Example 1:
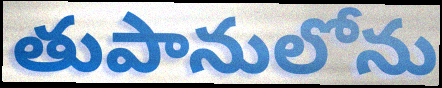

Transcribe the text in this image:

తుపానులోను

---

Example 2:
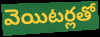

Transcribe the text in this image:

వెయిటర్లతో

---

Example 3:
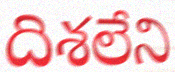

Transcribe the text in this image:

దిశలేని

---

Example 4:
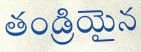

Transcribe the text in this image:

తండ్రియైన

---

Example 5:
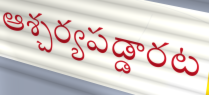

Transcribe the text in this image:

ఆశ్చర్యపడ్డారట